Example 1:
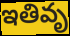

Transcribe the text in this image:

ఇతివృ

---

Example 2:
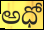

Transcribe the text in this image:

అధో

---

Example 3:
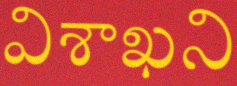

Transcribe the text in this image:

విశాఖని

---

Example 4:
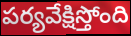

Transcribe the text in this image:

పర్యవేక్షిస్తోంది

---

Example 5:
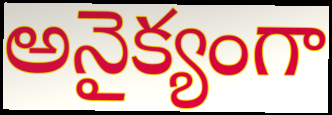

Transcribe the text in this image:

అనైక్యంగా